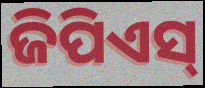
ଜିପିଏସ୍